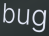
bug